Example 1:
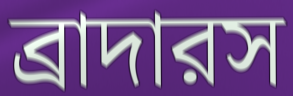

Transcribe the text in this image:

ব্রাদারস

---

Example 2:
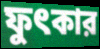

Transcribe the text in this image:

ফুৎকার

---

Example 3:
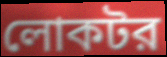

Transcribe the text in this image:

লোকটর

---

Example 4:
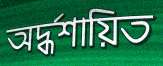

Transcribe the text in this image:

অর্দ্ধশায়িত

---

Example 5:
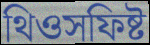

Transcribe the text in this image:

থিওসফিষ্ট